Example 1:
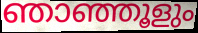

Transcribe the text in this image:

ഞാഞ്ഞൂളും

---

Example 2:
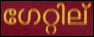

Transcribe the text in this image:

ഗേറ്റില്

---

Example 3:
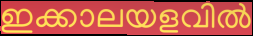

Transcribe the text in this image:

ഇക്കാലയളവിൽ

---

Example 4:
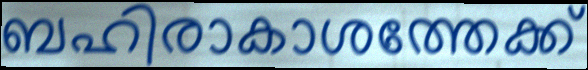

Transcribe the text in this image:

ബഹിരാകാശത്തേക്ക്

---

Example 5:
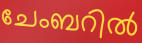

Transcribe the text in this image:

ചേംബറിൽ